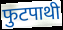
फुटपाथी